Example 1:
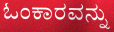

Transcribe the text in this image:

ಓಂಕಾರವನ್ನು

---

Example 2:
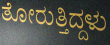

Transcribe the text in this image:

ತೋರುತ್ತಿದ್ದಳು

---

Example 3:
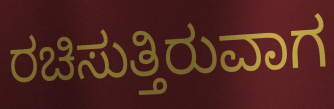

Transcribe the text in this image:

ರಚಿಸುತ್ತಿರುವಾಗ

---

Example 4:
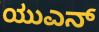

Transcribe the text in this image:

ಯುಎನ್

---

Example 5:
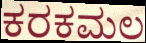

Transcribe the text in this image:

ಕರಕಮಲ